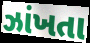
ઝાંખતા